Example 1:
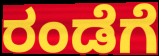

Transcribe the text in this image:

ರಂಡೆಗೆ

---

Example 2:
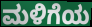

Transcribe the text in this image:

ಮಳಿಗೆಯ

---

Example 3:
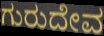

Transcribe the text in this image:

ಗುರುದೇವ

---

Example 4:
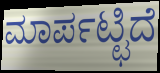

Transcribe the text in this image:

ಮಾರ್ಪಟ್ಟಿದೆ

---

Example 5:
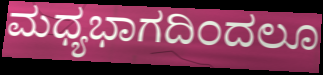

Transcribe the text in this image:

ಮಧ್ಯಭಾಗದಿಂದಲೂ